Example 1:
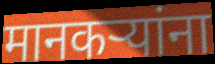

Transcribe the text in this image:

मानकऱ्यांना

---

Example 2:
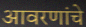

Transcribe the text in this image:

आवरणांचे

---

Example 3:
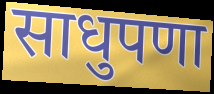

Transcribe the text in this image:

साधुपणा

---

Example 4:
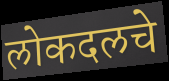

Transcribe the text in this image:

लोकदलचे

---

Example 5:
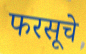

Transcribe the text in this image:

फरसूचे